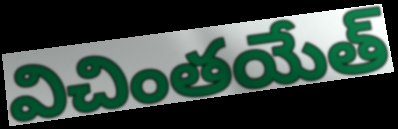
విచింతయేత్